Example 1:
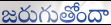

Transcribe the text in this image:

జరుగుతోందా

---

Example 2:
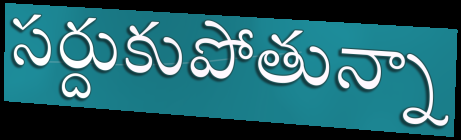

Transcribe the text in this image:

సర్దుకుపోతున్నా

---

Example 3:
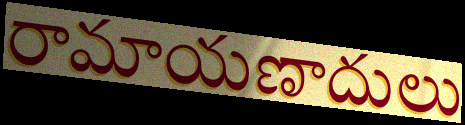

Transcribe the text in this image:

రామాయణాదులు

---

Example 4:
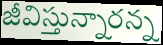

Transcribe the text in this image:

జీవిస్తున్నారన్న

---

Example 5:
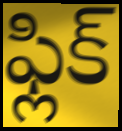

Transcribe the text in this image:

ఫ్లిక్